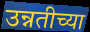
उन्नतीच्या